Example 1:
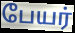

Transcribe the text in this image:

பேயர்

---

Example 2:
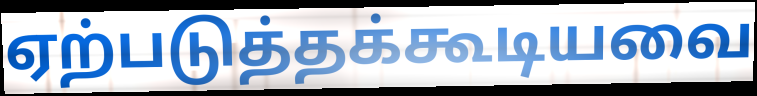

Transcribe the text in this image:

ஏற்படுத்தக்கூடியவை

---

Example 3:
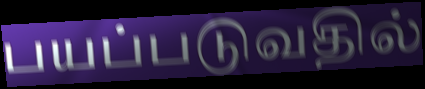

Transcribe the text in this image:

பயப்படுவதில்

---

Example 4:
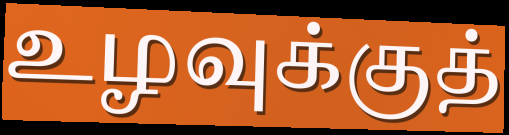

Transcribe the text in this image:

உழவுக்குத்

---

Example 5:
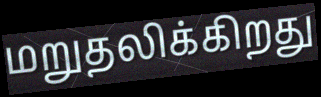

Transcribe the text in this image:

மறுதலிக்கிறது